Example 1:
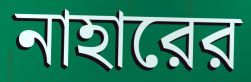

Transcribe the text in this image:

নাহারের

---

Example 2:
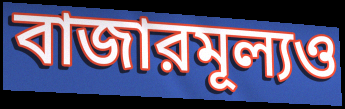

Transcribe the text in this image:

বাজারমূল্যও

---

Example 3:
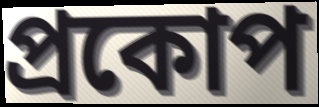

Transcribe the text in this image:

প্রকোপ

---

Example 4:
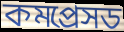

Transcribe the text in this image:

কমপ্রেসড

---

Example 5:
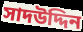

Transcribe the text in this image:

সাদউদ্দিন